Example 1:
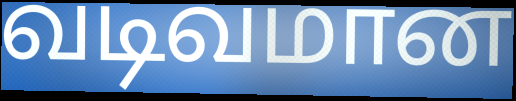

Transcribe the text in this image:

வடிவமான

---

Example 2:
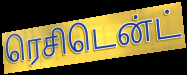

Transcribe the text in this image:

ரெசிடென்ட்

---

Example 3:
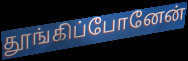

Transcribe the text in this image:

தூங்கிப்போனேன்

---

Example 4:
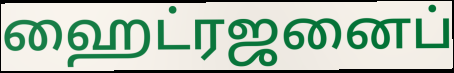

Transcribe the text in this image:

ஹைட்ரஜனைப்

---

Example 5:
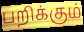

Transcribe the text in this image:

பறிக்கும்